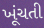
ખૂંચતી